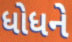
ધોધને